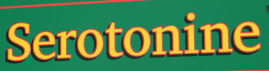
Serotonine